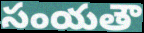
సంయతౌ